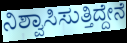
ನಿಶ್ವಾಸಿಸುತ್ತಿದ್ದೇನೆ